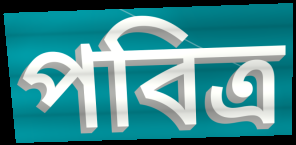
পবিত্র